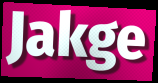
Jakge